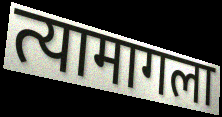
त्यामागला